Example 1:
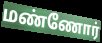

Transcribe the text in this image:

மண்ணோர்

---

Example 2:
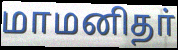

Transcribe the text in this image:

மாமனிதர்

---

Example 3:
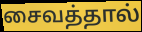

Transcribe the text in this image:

சைவத்தால்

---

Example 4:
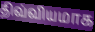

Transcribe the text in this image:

திவ்வியமாக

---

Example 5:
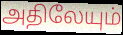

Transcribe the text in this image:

அதிலேயும்